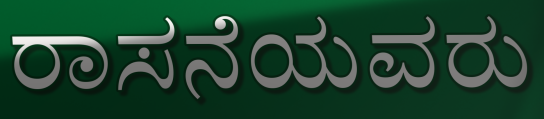
ರಾಸನೆಯವರು